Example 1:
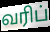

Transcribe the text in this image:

வரிப்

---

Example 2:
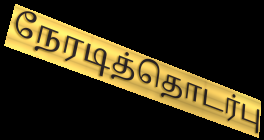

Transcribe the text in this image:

நேரடித்தொடர்பு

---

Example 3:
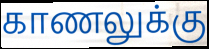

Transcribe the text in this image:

காணலுக்கு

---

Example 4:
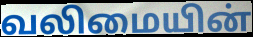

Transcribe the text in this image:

வலிமையின்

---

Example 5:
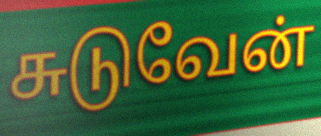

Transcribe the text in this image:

சுடுவேன்